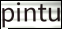
pintu